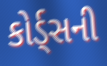
કોર્ડ્સની